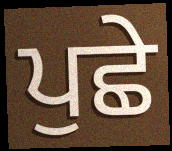
ਪੁਛੇ